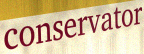
conservator